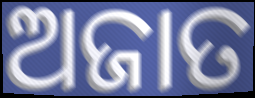
ଅଜାତ